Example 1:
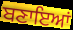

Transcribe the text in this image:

ਬਣਾਇਆਂ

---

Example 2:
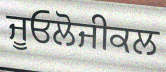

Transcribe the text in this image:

ਜੂਓਲੋਜੀਕਲ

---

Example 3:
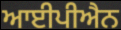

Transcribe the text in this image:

ਆਈਪੀਐਨ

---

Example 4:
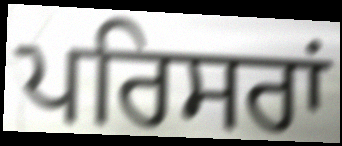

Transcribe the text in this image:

ਪਰਿਸਰਾਂ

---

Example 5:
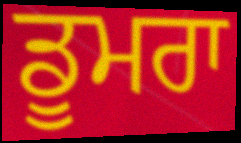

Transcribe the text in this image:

ਡੂਮਰਾ